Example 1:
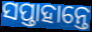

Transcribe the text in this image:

ସପ୍ତାହାନ୍ତେ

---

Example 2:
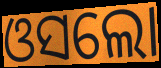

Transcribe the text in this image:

ଓସଲୋ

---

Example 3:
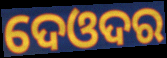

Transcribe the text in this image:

ଦେଓଦର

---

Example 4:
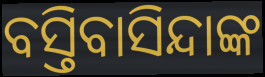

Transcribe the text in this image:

ବସ୍ତିବାସିନ୍ଦାଙ୍କ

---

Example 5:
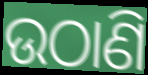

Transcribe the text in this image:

ଉଠାଣି